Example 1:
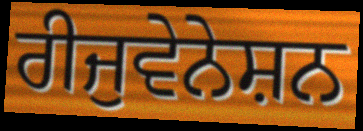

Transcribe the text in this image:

ਰੀਜੁਵੇਨੇਸ਼ਨ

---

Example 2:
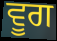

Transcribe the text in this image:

ਵੂਗ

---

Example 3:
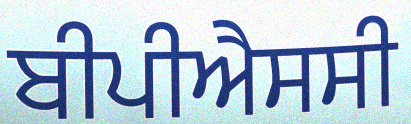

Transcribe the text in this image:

ਬੀਪੀਐਸਸੀ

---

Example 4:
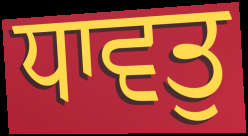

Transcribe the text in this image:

ਧਾਵਤੁ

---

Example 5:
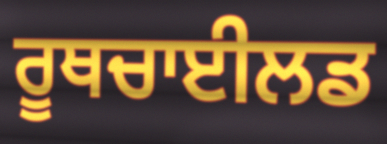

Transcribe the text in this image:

ਰੂਥਚਾਈਲਡ